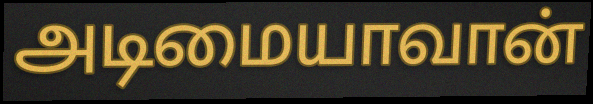
அடிமையாவான்